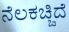
ನೆಲಕಚ್ಚಿದೆ